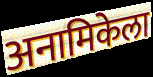
अनामिकेला